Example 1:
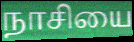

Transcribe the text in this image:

நாசியை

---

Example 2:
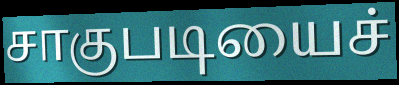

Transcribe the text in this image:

சாகுபடியைச்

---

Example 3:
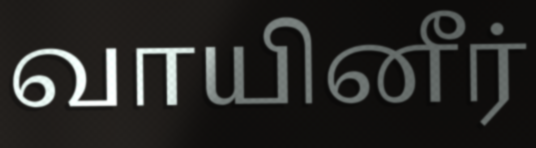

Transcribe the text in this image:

வாயினீர்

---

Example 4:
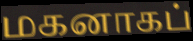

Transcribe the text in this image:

மகனாகப்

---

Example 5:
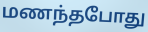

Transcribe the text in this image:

மணந்தபோது